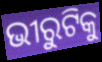
ଭୀରୁଟିକୁ